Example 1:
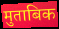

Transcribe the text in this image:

मुताबिक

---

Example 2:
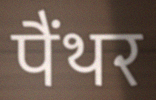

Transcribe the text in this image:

पैंथर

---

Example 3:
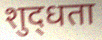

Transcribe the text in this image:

शुद्धता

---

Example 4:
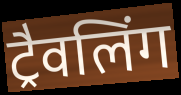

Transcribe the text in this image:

ट्रैवलिंग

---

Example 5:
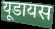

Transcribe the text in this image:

यूडायस